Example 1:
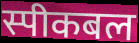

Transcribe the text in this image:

स्पीकबल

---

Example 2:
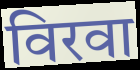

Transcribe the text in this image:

विरवा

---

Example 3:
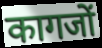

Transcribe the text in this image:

कागजों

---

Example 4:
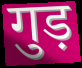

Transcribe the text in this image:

गुड़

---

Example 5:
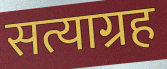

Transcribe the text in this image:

सत्याग्रह